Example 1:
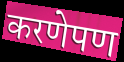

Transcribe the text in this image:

करणेपण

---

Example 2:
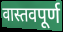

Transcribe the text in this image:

वास्तवपूर्ण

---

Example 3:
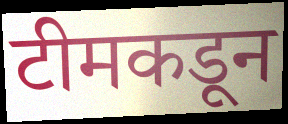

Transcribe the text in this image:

टीमकडून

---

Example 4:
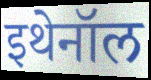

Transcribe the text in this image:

इथेनॉल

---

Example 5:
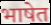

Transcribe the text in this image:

भाषेत